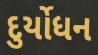
દુર્યોધન